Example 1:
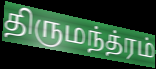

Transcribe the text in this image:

திருமந்த்ரம்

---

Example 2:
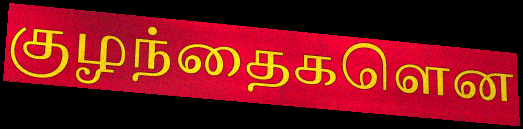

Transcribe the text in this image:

குழந்தைகளென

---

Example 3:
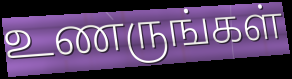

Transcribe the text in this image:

உணருங்கள்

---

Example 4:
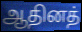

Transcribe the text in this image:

ஆதினத்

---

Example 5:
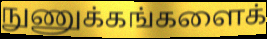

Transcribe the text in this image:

நுணுக்கங்களைக்